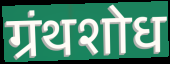
ग्रंथशोध